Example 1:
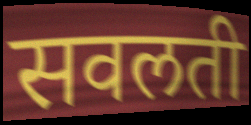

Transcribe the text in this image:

सवलती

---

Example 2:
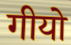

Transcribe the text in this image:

गीयो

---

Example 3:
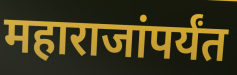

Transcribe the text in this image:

महाराजांपर्यंत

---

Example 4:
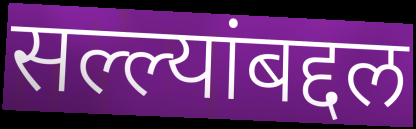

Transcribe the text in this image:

सल्ल्यांबद्दल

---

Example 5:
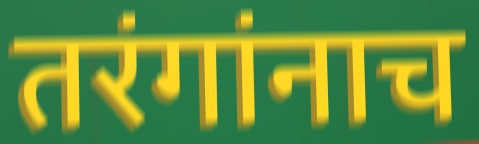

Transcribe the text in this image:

तरंगांनाच